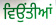
ਵਿਉਂਤੀਆਂ